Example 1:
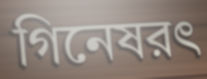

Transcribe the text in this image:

গিনেষরৎ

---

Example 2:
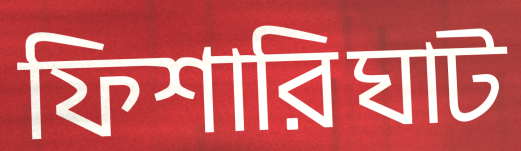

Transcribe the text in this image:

ফিশারিঘাট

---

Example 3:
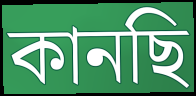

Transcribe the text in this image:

কানছি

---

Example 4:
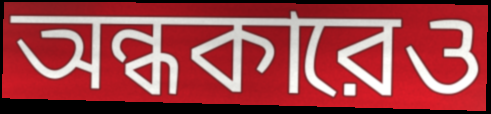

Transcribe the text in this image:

অন্ধকারেও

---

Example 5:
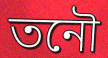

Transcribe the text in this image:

তনৌ